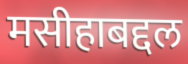
मसीहाबद्दल